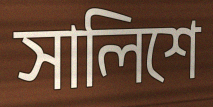
সালিশে